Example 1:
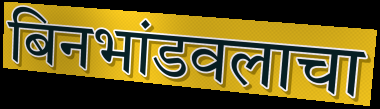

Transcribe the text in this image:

बिनभांडवलाचा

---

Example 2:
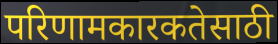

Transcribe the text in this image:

परिणामकारकतेसाठी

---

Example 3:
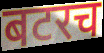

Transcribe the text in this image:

बटरच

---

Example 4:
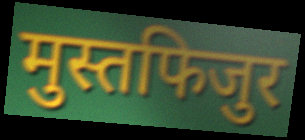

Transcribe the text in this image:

मुस्तफिजुर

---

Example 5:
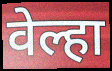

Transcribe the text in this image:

वेल्हा